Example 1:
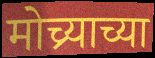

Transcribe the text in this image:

मोच्र्याच्या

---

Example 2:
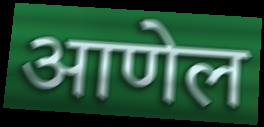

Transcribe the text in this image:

आणेल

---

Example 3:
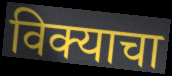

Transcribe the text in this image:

विक्याचा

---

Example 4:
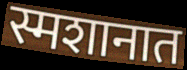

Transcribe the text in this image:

स्मशानात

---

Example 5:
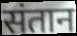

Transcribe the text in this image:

संतान